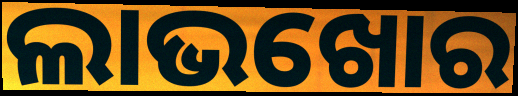
ଲାଭଖୋର